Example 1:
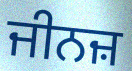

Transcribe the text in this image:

ਜੀਨਜ਼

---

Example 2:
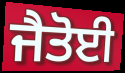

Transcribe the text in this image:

ਜੈਤੋਈ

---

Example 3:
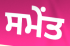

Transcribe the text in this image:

ਸਮੇਂਤ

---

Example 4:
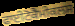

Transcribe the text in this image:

ਫਾਈਟੋਕੈਮੀਕਲਸ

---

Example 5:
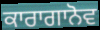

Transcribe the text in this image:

ਕਾਰਾਗਾਨੋਵ